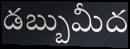
డబ్బుమీద